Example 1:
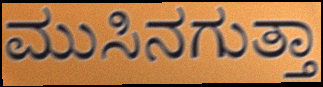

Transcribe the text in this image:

ಮುಸಿನಗುತ್ತಾ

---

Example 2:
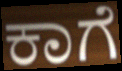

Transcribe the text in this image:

ಕಾಗೆ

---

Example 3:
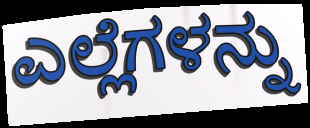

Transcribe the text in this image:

ಎಲ್ಲೆಗಳನ್ನು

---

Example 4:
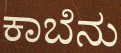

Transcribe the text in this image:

ಕಾಬೆನು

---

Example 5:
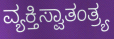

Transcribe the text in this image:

ವ್ಯಕ್ತಿಸ್ವಾತಂತ್ರ್ಯ